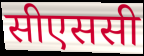
सीएससी